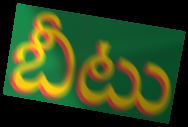
బీటు